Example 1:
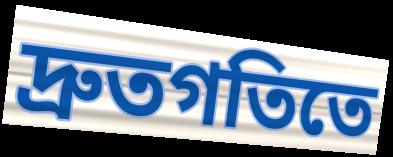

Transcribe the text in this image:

দ্রুতগতিতে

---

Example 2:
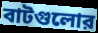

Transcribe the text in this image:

বাটগুলোর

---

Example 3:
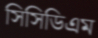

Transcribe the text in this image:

সিসিডিএম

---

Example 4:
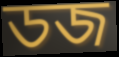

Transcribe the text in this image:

ডজ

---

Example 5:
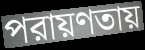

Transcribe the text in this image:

পরায়ণতায়